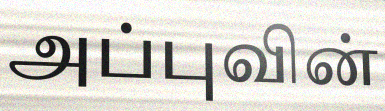
அப்புவின்